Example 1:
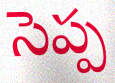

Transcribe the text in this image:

సెప్ప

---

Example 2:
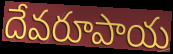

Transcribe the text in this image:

దేవరూపాయ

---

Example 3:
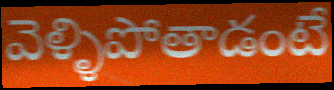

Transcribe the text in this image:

వెళ్ళిపోతాడంటే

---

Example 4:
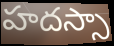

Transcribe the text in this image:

హదస్సా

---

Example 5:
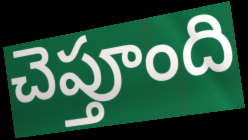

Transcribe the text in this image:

చెప్తూంది